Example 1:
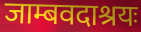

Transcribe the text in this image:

जाम्बवदाश्रयः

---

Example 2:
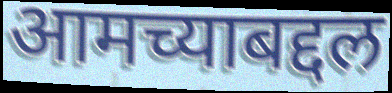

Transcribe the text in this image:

आमच्याबद्दल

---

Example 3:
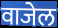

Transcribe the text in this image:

वाजेल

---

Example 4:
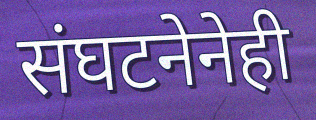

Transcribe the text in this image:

संघटनेनेही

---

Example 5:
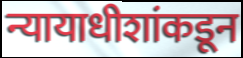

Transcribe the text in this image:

न्यायाधीशांकडून